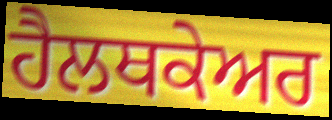
ਹੈਲਥਕੇਅਰ